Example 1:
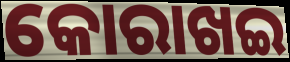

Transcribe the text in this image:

କୋରାଖଇ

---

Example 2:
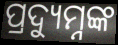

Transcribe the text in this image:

ପ୍ରଦ୍ୟୁମ୍ନଙ୍କ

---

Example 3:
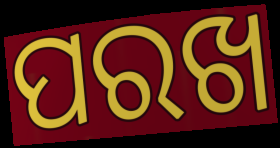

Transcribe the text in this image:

ପରଖ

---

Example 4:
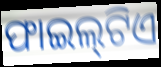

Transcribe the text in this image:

ଫାଇଲ୍‌ଟିଏ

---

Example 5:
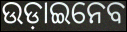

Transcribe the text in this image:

ଉଡ଼ାଇନେବ